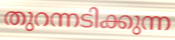
തുറന്നടിക്കുന്ന